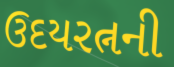
ઉદયરત્નની